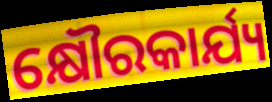
କ୍ଷୌରକାର୍ଯ୍ୟ